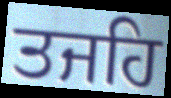
ਤਜਹਿ